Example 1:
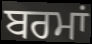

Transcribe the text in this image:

ਬਰਮਾਂ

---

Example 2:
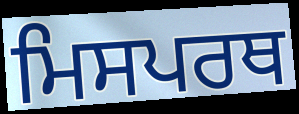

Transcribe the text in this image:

ਮਿਸਪਰਥ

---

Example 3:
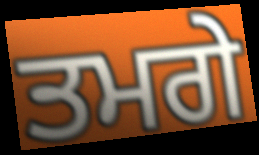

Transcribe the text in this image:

ਤਮਗੇ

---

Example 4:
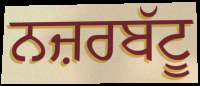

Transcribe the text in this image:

ਨਜ਼ਰਬੱਟੂ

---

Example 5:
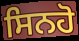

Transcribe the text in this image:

ਸਿਨਹੋ